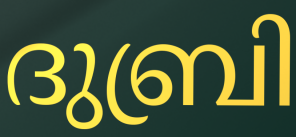
ദുബ്രി